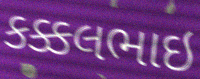
કક્કલભાઇ